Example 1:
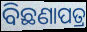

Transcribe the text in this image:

ବିଛଣାପତ୍ର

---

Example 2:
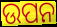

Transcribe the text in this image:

ଉପନ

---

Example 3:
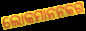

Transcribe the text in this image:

ଲୋକମାନନକର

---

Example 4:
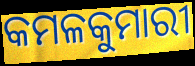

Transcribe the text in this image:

କମଳକୁମାରୀ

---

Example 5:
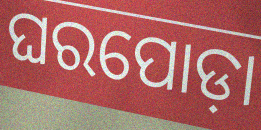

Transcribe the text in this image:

ଘରପୋଡ଼ା